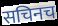
सचिनच